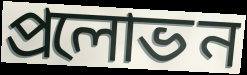
প্ৰলোভন